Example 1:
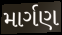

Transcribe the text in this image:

માર્ગણ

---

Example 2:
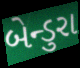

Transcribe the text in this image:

બેન્ડુરા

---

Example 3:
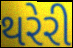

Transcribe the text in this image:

થરેરી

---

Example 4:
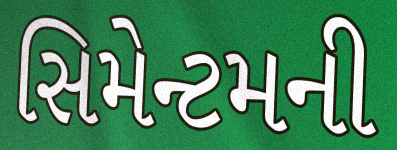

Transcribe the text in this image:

સિમેન્ટમની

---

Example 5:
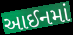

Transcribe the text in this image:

આઈનમાં